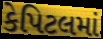
કેપિટલમાં